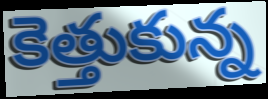
కెత్తుకున్న